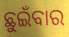
ଛୁଇଁବାର